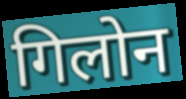
गिलोन